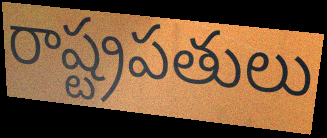
రాష్ట్రపతులు